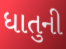
ધાતુની